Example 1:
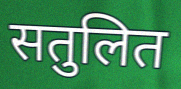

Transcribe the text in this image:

सतुलित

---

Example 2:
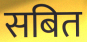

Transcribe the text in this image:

सबित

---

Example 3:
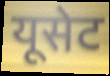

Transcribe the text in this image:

यूसेट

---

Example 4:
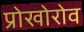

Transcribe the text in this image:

प्रोखोरोव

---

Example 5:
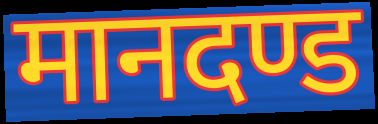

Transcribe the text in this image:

मानदण्ड